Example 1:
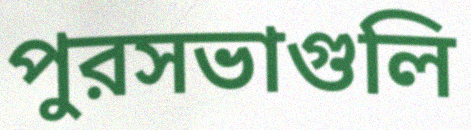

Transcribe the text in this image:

পুরসভাগুলি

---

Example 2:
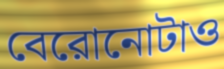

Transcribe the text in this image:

বেরোনোটাও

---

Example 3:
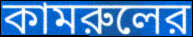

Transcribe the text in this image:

কামরুলের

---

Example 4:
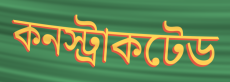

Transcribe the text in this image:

কনস্ট্রাকটেড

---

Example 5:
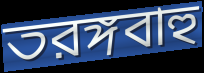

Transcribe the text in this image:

তরঙ্গবাহু